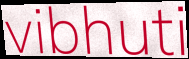
vibhuti